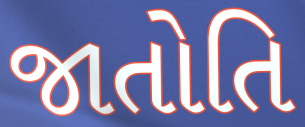
જાતોતિ